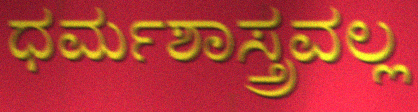
ಧರ್ಮಶಾಸ್ತ್ರವಲ್ಲ